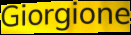
Giorgione